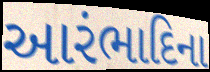
આરંભાદિના